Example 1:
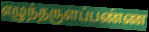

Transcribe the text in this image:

எழுந்தருளப்பண்ண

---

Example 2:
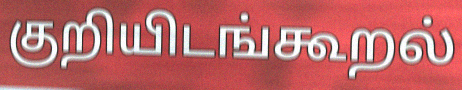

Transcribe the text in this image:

குறியிடங்கூறல்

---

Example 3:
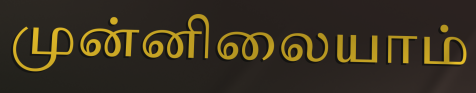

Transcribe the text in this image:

முன்னிலையாம்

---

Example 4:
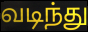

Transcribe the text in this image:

வடிந்து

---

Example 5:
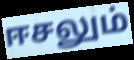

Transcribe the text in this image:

ஈசலும்